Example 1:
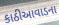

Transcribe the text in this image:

કાઠીઆવાડના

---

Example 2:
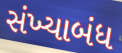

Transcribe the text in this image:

સંખ્યાબંધ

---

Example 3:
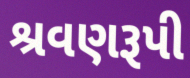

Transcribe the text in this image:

શ્રવણરૂપી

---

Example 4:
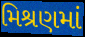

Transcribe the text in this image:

મિશ્રણમાં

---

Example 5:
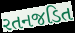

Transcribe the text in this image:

રતનજડિત